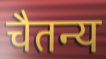
चैतन्य